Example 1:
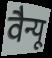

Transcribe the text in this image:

वैन्यू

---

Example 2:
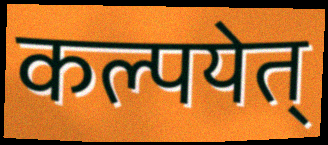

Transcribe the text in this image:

कल्पयेत्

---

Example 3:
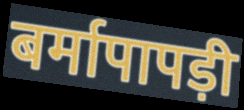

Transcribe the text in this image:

बर्मापापड़ी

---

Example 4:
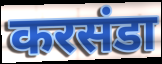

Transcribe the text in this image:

करसंडा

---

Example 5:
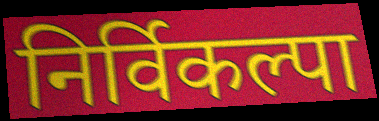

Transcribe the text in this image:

निर्विकल्पा